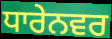
ਧਾਰੇਨਵਰ